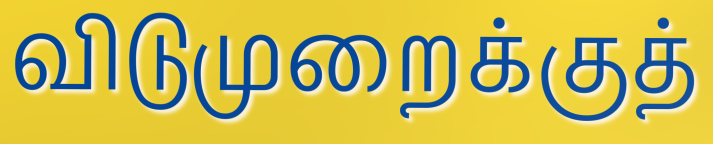
விடுமுறைக்குத்